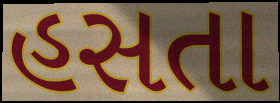
હસતા